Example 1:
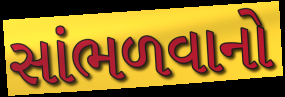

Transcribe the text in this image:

સાંભળવાનો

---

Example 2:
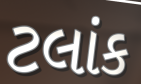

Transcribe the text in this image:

ટલાંક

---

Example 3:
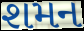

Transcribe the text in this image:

શમન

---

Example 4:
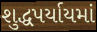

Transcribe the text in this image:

શુદ્ધપર્યાયમાં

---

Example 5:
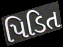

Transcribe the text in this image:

પિડિત